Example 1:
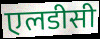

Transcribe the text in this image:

एलडीसी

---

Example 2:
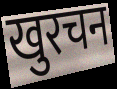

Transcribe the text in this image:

खुरचन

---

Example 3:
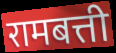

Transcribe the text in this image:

रामबत्ती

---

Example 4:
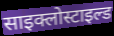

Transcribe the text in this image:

साइक्लोस्टाइल्ड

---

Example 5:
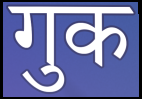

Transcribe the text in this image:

गुक